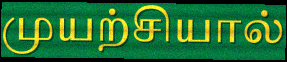
முயற்சியால்